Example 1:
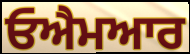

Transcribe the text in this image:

ਓਐਮਆਰ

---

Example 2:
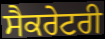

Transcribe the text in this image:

ਸੈਕਰੇਟਰੀ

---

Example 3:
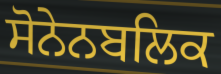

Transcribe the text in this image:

ਸੋਨੇਨਬਲਿਕ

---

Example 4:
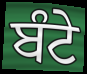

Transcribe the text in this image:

ਬੰਟੇ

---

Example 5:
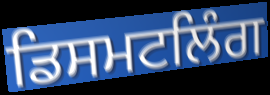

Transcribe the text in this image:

ਡਿਸਮਟਲਿੰਗ